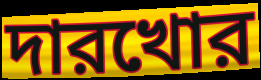
দারখোর